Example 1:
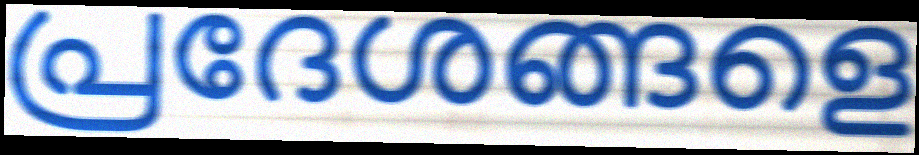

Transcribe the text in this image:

പ്രദേശങ്ങളെ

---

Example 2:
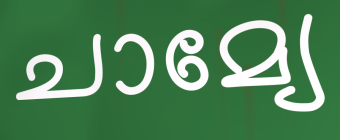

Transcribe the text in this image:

ചാമ്യേ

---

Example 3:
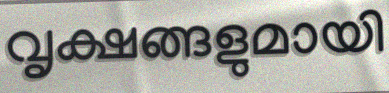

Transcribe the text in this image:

വൃക്ഷങ്ങളുമായി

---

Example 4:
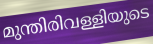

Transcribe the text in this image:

മുന്തിരിവള്ളിയുടെ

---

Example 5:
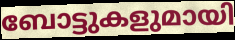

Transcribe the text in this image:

ബോട്ടുകളുമായി